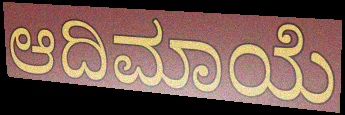
ಆದಿಮಾಯೆ